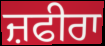
ਜ਼ਫੀਰਾ